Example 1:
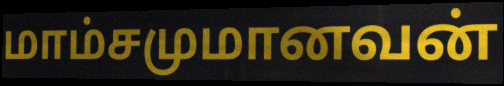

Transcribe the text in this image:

மாம்சமுமானவன்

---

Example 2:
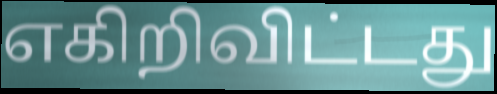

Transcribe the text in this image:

எகிறிவிட்டது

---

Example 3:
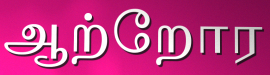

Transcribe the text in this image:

ஆற்றோர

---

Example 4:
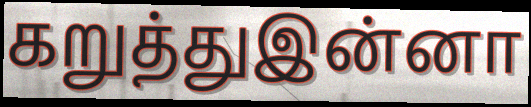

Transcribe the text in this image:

கறுத்துஇன்னா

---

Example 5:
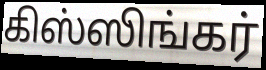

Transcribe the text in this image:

கிஸ்ஸிங்கர்